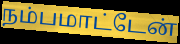
நம்பமாட்டேன்